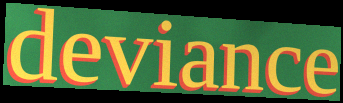
deviance